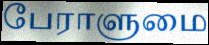
பேராளுமை